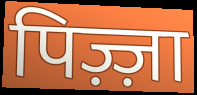
पिज़्ज़ा